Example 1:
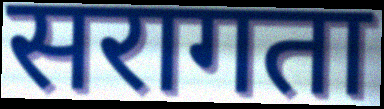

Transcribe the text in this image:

सरागता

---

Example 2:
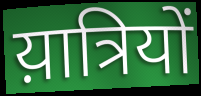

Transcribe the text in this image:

य़ात्रियों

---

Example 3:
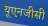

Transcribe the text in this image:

यूएनजीसी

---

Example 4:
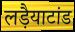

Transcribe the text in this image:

लड़ैयाटांड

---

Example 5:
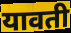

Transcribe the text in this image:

यावती